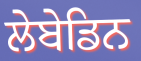
ਲੇਬੇਡਿਨ